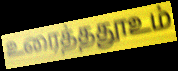
உரைத்ததூஉம்